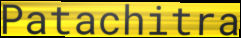
Patachitra